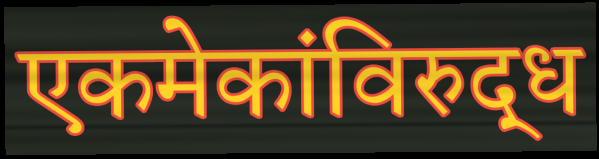
एकमेकांविरुद्ध